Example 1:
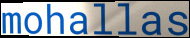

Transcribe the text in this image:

mohallas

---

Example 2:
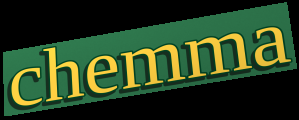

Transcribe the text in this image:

chemma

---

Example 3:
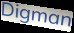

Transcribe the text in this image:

Digman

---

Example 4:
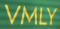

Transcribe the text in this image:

VMLY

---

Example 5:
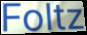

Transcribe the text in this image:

Foltz